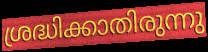
ശ്രദ്ധിക്കാതിരുന്നു